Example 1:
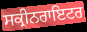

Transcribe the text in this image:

ਸਕ੍ਰੀਨਰਾਇਟਰ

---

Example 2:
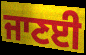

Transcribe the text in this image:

ਜਾਣਈ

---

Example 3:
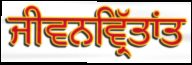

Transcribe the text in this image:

ਜੀਵਨਵ੍ਰਿੱਤਾਂਤ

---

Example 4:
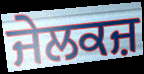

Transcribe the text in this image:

ਜੇਲਕਜ਼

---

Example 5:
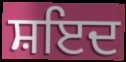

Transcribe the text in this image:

ਸ਼ਇਦ